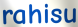
rahisu